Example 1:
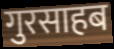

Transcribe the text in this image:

गुरसाहब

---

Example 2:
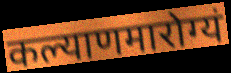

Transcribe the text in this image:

कल्याणमारोग्यं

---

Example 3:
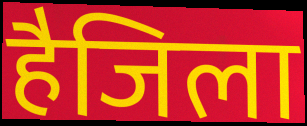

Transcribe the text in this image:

हैजिला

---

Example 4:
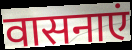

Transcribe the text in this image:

वासनाएं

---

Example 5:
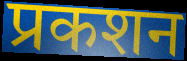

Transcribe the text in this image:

प्रकशन